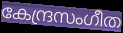
കേന്ദ്രസംഗീത